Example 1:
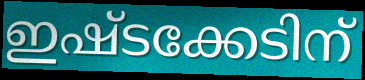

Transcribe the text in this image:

ഇഷ്ടക്കേടിന്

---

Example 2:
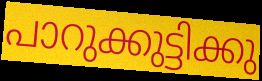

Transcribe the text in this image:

പാറുക്കുട്ടിക്കു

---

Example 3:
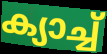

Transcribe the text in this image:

ക്യാച്ച്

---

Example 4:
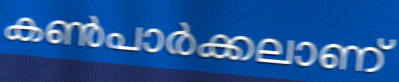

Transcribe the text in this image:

കൺപാർക്കലാണ്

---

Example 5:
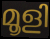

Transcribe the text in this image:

മൂളി